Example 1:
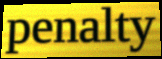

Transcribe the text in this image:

penalty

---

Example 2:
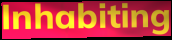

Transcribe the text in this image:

Inhabiting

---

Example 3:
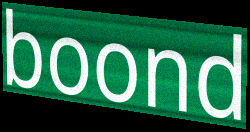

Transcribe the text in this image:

boond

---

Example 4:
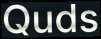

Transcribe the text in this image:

Quds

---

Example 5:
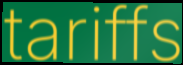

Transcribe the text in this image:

tariffs